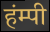
हंम्पी